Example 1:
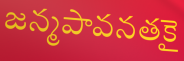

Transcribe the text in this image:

జన్మపావనతకై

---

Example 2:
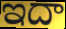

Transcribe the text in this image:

ఇదా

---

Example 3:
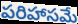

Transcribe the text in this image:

పరిహాసమే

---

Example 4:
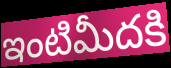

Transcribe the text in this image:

ఇంటిమీదకి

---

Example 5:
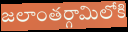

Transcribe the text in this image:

జలాంతర్గామిలోకి